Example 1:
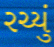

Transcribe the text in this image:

રચ્યું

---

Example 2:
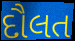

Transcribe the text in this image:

દૌલત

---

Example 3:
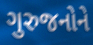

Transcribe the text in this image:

ગુરુજનોને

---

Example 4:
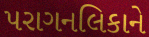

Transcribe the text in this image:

પરાગનલિકાને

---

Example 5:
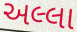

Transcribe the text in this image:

અલ્લા